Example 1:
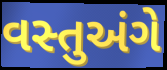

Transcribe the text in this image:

વસ્તુઅંગે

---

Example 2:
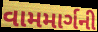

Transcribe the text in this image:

વામમાર્ગની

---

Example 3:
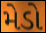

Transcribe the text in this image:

મેડો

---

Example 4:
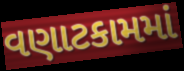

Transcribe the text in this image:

વણાટકામમાં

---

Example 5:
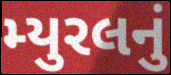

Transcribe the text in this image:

મ્યુરલનું